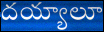
దయ్యాలూ